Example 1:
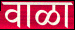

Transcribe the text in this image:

वाळा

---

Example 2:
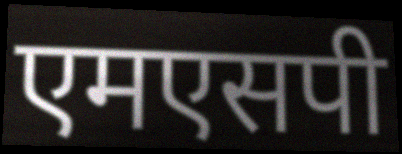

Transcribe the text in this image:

एमएसपी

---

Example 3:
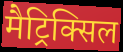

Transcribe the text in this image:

मैट्रिक्सिल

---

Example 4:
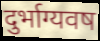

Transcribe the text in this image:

दुर्भाग्यवष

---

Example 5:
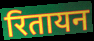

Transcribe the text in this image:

रितायन